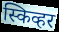
स्किव्हर